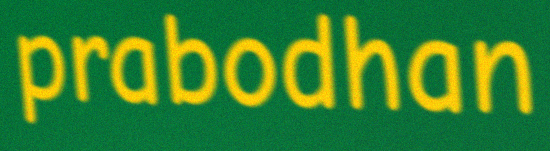
prabodhan